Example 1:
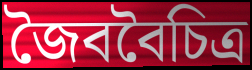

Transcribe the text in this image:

জৈববৈচিত্র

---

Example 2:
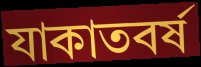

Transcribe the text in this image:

যাকাতবর্ষ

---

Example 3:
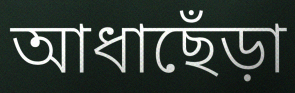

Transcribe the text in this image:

আধাছেঁড়া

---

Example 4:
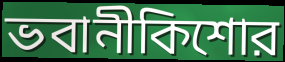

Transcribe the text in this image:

ভবানীকিশোর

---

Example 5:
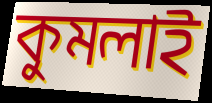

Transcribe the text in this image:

কুমলাই